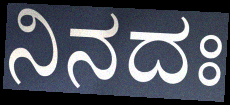
ನಿನದಃ